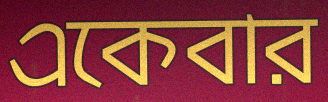
একেবার